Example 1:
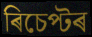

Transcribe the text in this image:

ৰিচেপ্টৰ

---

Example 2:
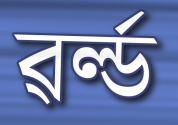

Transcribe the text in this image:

ৱৰ্ল্ড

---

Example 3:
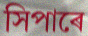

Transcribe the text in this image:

সিপাৰে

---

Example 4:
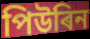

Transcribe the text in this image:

পিউৰিন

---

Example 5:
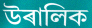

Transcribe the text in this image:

উৰালিক